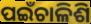
ପଇଁଚାଳିଶି